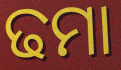
ଢମା